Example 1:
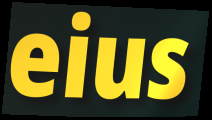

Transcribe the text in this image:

eius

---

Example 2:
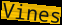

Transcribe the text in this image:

Vines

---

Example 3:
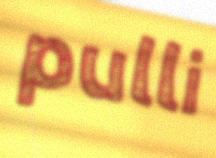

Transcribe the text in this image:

pulli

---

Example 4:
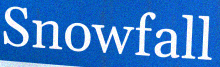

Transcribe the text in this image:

Snowfall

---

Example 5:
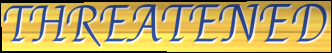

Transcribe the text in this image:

THREATENED